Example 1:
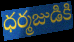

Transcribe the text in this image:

ధర్మజుడికి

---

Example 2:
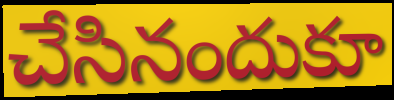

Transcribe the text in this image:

చేసినందుకూ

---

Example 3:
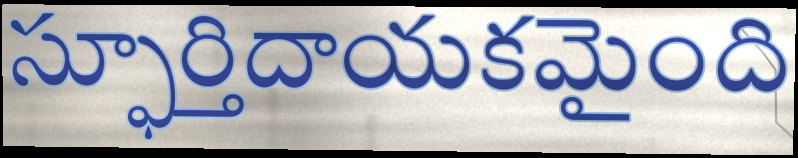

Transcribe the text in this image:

స్ఫూర్తిదాయకమైంది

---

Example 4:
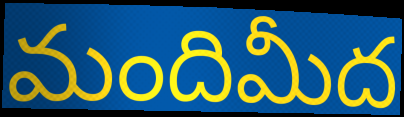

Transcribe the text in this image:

మందిమీద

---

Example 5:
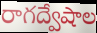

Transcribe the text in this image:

రాగద్వేషాల